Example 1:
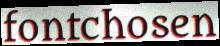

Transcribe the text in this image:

fontchosen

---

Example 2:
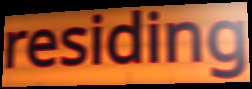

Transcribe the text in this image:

residing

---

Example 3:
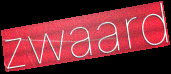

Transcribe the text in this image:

zwaard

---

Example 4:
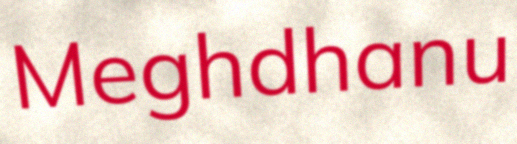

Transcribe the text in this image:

Meghdhanu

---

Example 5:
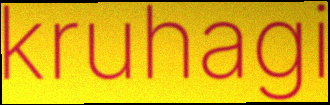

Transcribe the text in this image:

kruhagi